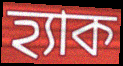
হ্যাক